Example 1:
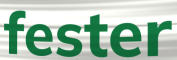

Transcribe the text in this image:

fester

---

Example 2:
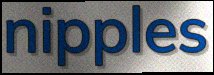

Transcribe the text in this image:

nipples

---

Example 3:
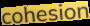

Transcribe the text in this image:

cohesion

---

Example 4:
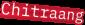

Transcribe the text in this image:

Chitraang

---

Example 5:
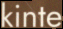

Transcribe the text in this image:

kinte